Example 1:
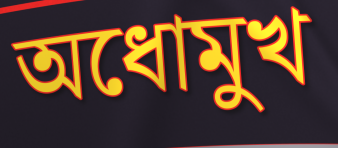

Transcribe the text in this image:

অধোমুখ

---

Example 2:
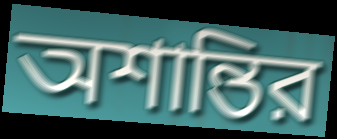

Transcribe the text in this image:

অশান্তির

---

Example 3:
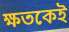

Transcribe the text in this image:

ক্ষতকেই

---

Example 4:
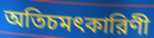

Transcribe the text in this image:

অতিচমৎকারিণী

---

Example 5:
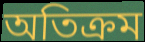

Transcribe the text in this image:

অতিক্রম